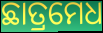
ଛାତ୍ରମେଧ